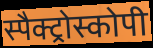
स्पैक्ट्रोस्कोपी